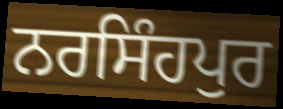
ਨਰਸਿੰਹਪੁਰ